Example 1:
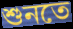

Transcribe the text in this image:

শুনতে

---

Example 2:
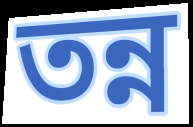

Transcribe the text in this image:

তন্ন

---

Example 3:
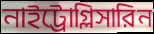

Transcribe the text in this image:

নাইট্রোগ্লিসারিন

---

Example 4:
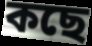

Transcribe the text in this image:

কছে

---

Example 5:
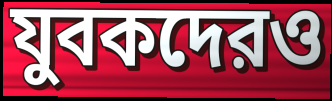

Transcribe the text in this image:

যুবকদেরও